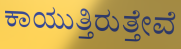
ಕಾಯುತ್ತಿರುತ್ತೇವೆ